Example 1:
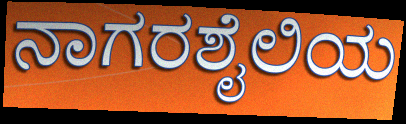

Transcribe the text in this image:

ನಾಗರಶೈಲಿಯ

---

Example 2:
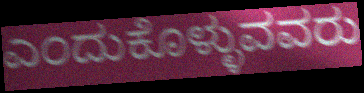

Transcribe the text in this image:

ಎಂದುಕೊಳ್ಳುವವರು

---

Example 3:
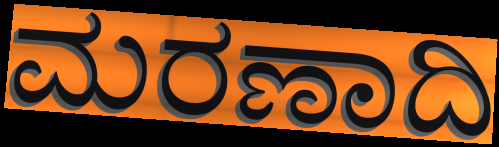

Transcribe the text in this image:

ಮರಣಾದಿ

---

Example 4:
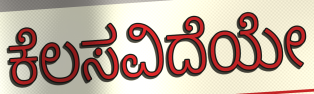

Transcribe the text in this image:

ಕೆಲಸವಿದೆಯೇ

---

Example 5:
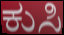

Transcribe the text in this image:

ಕುಸಿ